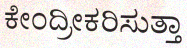
ಕೇಂದ್ರೀಕರಿಸುತ್ತಾ